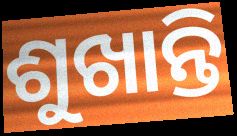
ଶୁଖାନ୍ତି